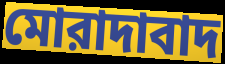
মোরাদাবাদ